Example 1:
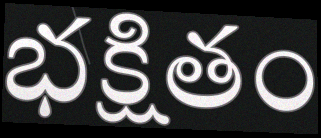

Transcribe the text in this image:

భక్షితం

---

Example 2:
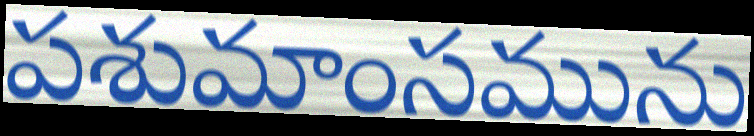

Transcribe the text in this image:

పశుమాంసమును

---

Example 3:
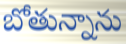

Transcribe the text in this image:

బోతున్నాను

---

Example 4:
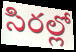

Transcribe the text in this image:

సిరల్లో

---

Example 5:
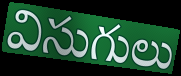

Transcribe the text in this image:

విసుగులు